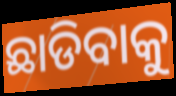
ଛାଡିବାକୁ